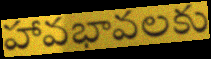
హావభావలకు